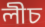
লীচ